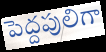
పెద్దపులిగా